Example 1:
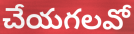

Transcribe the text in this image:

చేయగలవో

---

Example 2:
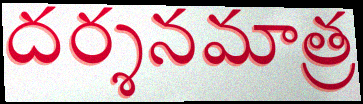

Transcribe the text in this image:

దర్శనమాత్ర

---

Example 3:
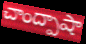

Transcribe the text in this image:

చాంద్పాషా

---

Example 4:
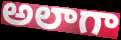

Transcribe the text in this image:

అలాగా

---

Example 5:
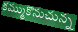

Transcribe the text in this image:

కమ్ముకొనుచున్న